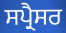
ਸਪ੍ਰੈਸਰ